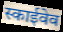
स्काईवेव